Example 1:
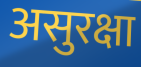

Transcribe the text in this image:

असुरक्षा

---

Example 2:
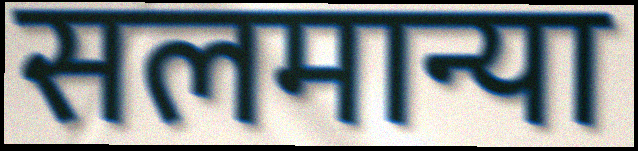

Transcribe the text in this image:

सलमान्या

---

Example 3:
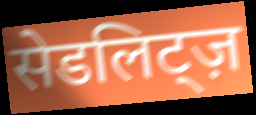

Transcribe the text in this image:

सेडलिट्ज़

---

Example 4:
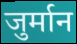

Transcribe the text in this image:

जुर्मान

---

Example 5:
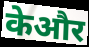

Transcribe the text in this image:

केऔर